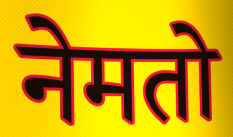
नेमतो